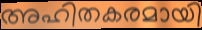
അഹിതകരമായി